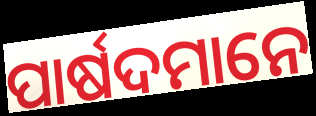
ପାର୍ଷଦମାନେ